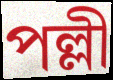
পল্লী